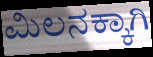
ಮಿಲನಕ್ಕಾಗಿ